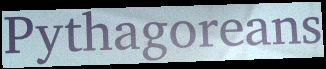
Pythagoreans